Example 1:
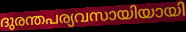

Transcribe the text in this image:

ദുരന്തപര്യവസായിയായി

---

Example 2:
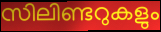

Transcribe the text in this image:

സിലിണ്ടറുകളും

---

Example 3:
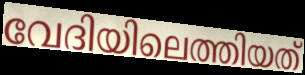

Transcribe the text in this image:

വേദിയിലെത്തിയത്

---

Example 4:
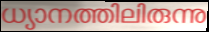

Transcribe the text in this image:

ധ്യാനത്തിലിരുന്നു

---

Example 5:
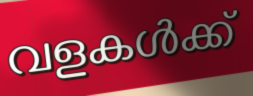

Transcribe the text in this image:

വളകൾക്ക്